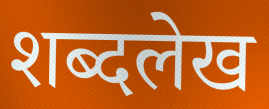
शब्दलेख